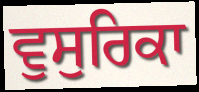
ਵੁਸੁਰਿਕਾ